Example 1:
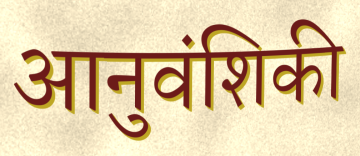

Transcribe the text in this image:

आनुवंशिकी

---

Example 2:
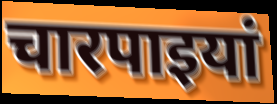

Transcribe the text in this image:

चारपाइयां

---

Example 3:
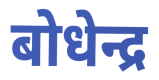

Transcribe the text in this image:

बोधेन्द्र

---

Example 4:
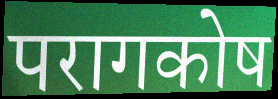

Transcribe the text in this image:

परागकोष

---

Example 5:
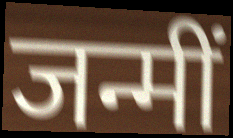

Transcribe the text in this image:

जन्मीं